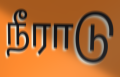
நீராடு